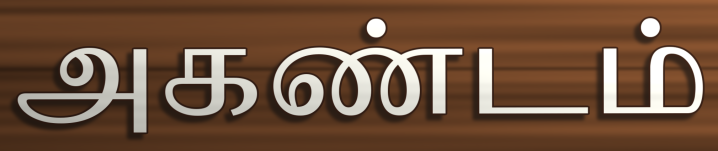
அகண்டம்